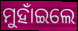
ମୁହାଁଇଲେ